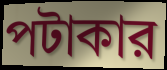
পটাকার